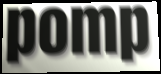
pomp